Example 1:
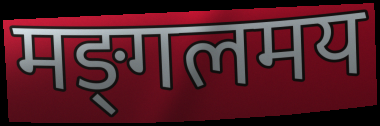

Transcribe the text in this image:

मङ्गलमय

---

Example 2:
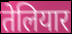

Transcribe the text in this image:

तेलियार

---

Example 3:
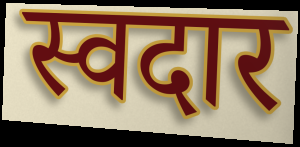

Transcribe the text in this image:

स्वदार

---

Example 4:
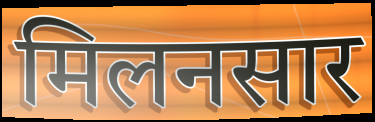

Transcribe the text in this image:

मिलनसार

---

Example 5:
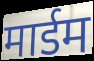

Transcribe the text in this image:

मार्डम